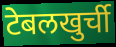
टेबलखुर्ची